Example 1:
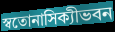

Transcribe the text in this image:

স্বতোনাসিক্যীভবন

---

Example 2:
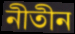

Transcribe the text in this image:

নীতীন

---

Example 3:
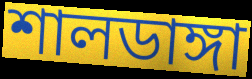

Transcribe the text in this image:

শালডাঙ্গা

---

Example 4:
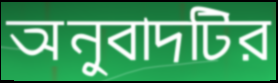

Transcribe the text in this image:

অনুবাদটির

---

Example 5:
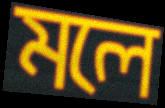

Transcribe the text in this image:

মলে